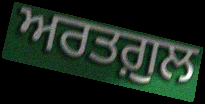
ਅਰਤਗ਼ੁਲ